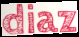
diaz